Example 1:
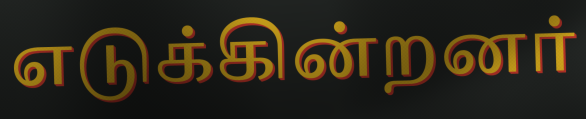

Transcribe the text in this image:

எடுக்கின்றனர்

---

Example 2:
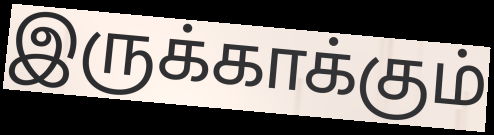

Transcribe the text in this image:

இருக்காக்கும்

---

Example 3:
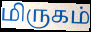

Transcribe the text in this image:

மிருகம்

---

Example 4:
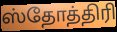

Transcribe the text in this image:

ஸ்தோத்திரி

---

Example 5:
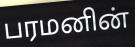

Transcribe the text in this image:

பரமனின்